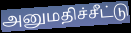
அனுமதிச்சீட்டு